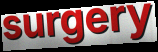
surgery